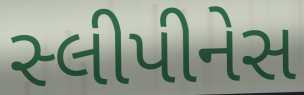
સ્લીપીનેસ